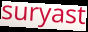
suryast